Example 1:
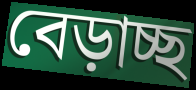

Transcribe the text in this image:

বেড়াচ্ছ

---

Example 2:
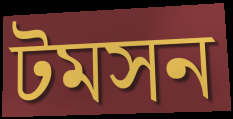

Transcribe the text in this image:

টমসন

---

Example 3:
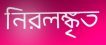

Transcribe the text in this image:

নিরলঙ্কৃত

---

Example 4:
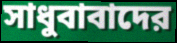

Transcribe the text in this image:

সাধুবাবাদের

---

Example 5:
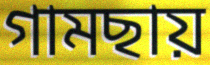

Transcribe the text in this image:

গামছায়